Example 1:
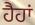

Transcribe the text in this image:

ਹੈਹਾਂ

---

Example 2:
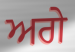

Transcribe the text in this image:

ਅਗੇ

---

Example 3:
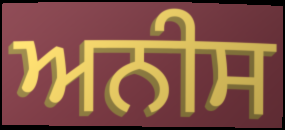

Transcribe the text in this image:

ਅਨੀਸ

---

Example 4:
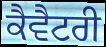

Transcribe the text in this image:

ਕੈਵੈਟਰੀ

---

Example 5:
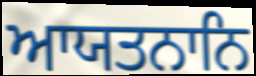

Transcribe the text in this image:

ਆਯਤਨਾਨਿ